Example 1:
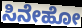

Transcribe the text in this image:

ಸಿನೇಹೋ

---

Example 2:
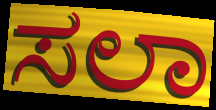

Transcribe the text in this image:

ಸಲಾ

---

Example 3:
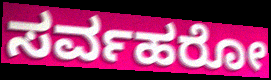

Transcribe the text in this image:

ಸರ್ವಹರೋ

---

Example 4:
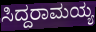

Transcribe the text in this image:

ಸಿದ್ದರಾಮಯ್ಯ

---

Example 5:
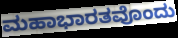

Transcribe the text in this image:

ಮಹಾಭಾರತವೊಂದು